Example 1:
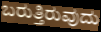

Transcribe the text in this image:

ಬರುತ್ತಿರುವುದು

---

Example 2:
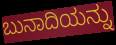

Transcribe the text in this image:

ಬುನಾದಿಯನ್ನು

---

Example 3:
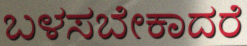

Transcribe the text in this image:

ಬಳಸಬೇಕಾದರೆ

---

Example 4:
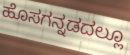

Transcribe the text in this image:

ಹೊಸಗನ್ನಡದಲ್ಲೂ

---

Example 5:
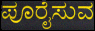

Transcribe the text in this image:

ಪೂರೈಸುವ